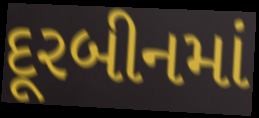
દૂરબીનમાં